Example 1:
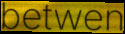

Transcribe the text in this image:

betwen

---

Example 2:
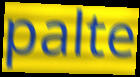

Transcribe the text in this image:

palte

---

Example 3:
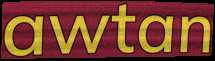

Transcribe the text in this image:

awtan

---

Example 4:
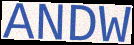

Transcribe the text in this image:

ANDW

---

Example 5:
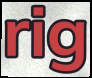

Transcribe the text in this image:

rig